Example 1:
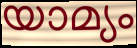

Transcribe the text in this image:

യാമ്യം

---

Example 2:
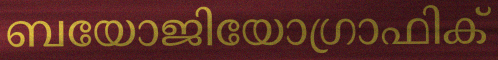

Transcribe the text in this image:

ബയോജിയോഗ്രാഫിക്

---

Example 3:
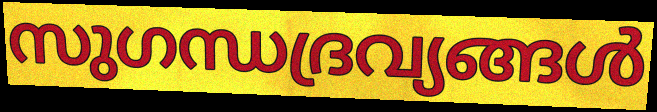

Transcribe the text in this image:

സുഗന്ധദ്രവ്യങ്ങൾ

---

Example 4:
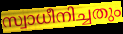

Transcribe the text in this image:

സ്വാധീനിച്ചതും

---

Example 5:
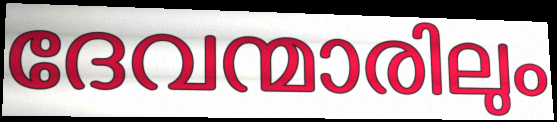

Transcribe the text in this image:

ദേവന്മാരിലും